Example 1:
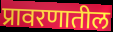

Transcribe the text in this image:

प्रावरणातील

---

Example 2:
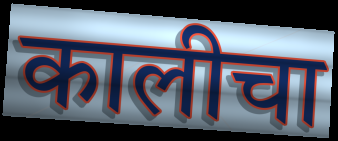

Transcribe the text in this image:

कालीचा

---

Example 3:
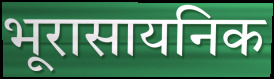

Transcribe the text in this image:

भूरासायनिक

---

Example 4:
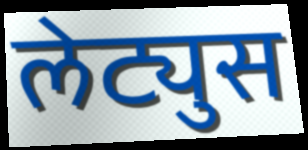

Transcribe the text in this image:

लेट्युस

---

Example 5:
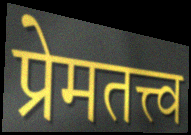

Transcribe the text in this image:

प्रेमतत्त्व